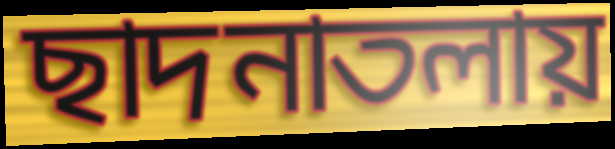
ছাদনাতলায়